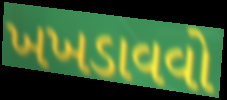
ખખડાવવો